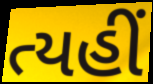
ત્યહીં